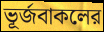
ভূর্জবাকলের